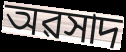
অৱসাদ